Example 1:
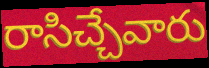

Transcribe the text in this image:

రాసిచ్చేవారు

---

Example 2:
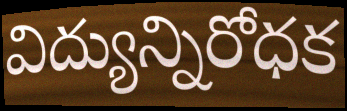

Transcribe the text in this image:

విద్యున్నిరోధక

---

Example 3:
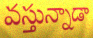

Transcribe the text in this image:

వస్తున్నాడా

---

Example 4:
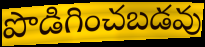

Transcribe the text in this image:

పొడిగించబడవు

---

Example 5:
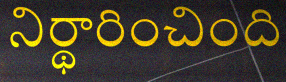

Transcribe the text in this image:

నిర్థారించింది